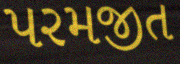
પરમજીત